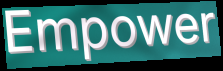
Empower